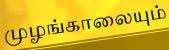
முழங்காலையும்